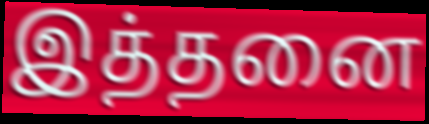
இத்தனை